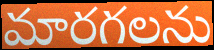
మారగలను